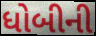
ધોબીની